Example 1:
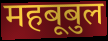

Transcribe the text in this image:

महबूबुल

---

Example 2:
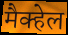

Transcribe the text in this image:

मैक्हेल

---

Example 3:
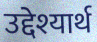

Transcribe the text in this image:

उद्देश्यार्थ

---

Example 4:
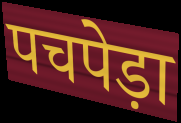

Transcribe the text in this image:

पचपेड़ा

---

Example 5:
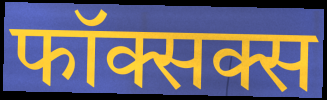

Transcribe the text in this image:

फॉक्सक्स